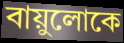
বায়ুলোকে